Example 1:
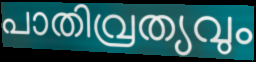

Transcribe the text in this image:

പാതിവ്രത്യവും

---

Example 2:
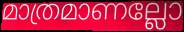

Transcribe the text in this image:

മാത്രമാണല്ലോ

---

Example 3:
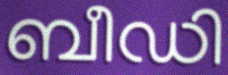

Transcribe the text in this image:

ബീഡി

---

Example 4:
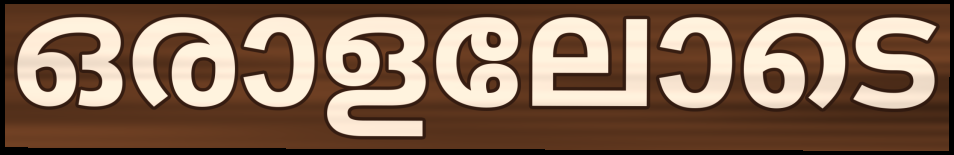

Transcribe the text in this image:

ഒരാളലോടെ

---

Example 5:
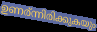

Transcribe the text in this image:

ഉണര്ന്നിരിക്കുകയും